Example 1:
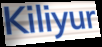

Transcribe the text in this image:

Kiliyur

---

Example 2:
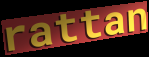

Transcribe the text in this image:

rattan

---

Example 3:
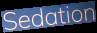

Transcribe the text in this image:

Sedation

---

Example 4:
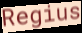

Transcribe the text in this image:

Regius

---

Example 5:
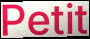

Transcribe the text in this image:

Petit